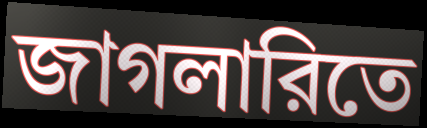
জাগলারিতে